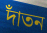
দাঁতন